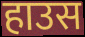
हाउस